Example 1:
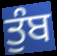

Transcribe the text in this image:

ਤੁੰਬ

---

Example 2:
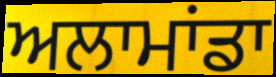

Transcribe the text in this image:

ਅਲਾਮਾਂਡਾ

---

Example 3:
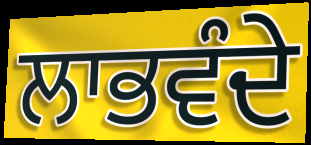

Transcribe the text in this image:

ਲਾਭਵੰਦੇ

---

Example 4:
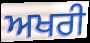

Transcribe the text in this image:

ਅਖਰੀ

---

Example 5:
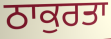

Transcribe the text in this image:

ਠਾਕੁਰਤਾ